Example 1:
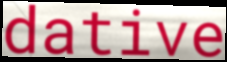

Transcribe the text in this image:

dative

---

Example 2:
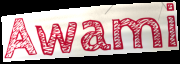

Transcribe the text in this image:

Awami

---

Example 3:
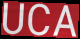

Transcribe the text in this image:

UCA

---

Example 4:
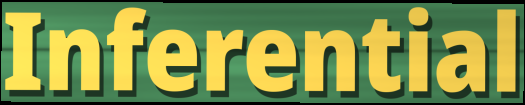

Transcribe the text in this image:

Inferential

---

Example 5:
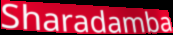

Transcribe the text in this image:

Sharadamba